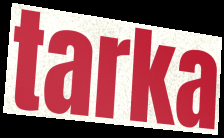
tarka